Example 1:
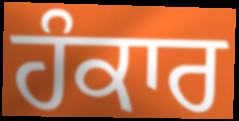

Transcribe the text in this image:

ਹੰਕਾਰ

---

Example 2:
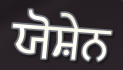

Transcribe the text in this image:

ਯੋਸ਼ੇਨ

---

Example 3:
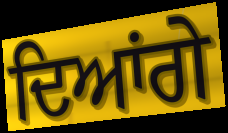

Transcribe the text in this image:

ਦਿਆਂਗੇ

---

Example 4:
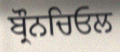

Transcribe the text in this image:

ਬ੍ਰੌਨਚਿਓਲ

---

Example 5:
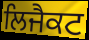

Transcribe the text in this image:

ਲਿਜੈਕਟ